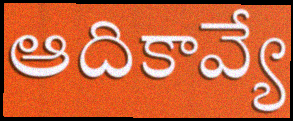
ఆదికావ్యే